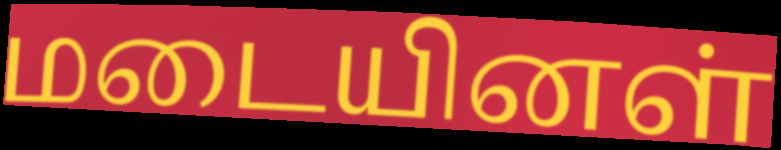
மடையினள்